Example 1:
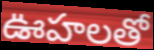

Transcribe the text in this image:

ఊహలతో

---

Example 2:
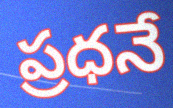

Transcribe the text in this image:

ప్రధనే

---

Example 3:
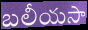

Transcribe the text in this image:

బలీయసా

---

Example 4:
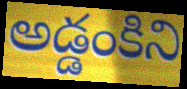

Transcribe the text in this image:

అడ్డంకిని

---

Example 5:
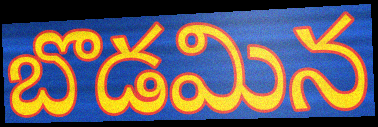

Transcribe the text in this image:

బొడమిన